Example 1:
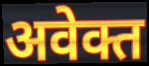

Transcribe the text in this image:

अवेक्त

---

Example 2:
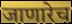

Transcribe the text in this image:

जाणारेच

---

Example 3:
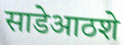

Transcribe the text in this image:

साडेआठशे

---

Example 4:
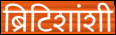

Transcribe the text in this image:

ब्रिटिशांशी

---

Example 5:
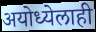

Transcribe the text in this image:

अयोध्येलाही